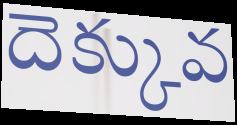
దెక్కువ